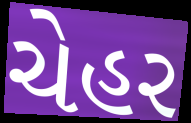
ચેહર